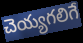
చెయ్యగలిగే